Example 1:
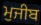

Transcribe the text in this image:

ਮੁਜੀਬ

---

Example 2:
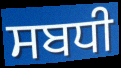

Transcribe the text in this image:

ਸਬਧੀ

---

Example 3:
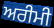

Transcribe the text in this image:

ਅਰੀਮੀ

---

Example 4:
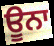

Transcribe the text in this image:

ਊਨਾ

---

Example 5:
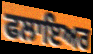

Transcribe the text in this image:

ਫਲਾਇਅਰ